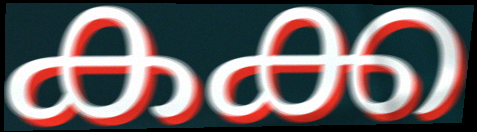
കക്ക